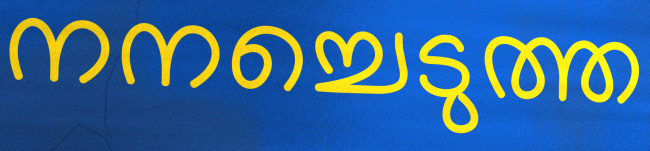
നനച്ചെടുത്ത